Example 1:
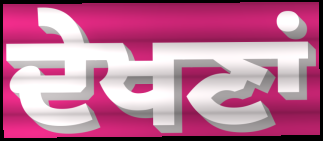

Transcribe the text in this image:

ਦੇਖਣਾਂ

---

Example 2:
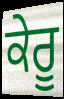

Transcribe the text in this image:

ਕੇਰੂ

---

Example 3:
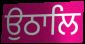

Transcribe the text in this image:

ਉਠਾਲਿ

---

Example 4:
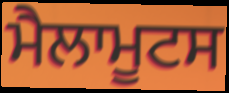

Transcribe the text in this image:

ਮੈਲਾਮੂਟਸ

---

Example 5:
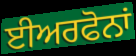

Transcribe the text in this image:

ਈਅਰਫੋਨਾਂ